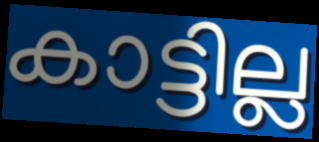
കാട്ടില്ല